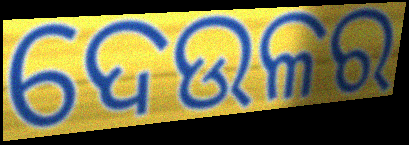
ଦେଉଳର